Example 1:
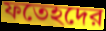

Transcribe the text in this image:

ফতেহদের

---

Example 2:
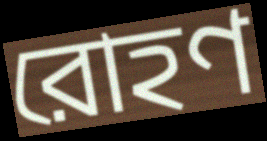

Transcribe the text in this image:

রোহণ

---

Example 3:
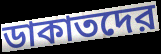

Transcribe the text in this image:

ডাকাতদের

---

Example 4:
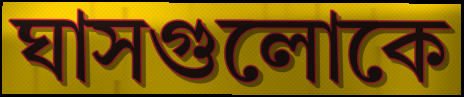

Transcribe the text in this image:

ঘাসগুলোকে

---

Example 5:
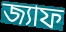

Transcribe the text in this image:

জ্যাফ